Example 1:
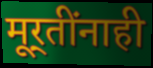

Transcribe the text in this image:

मूर्तींनाही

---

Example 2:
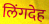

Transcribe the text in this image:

लिंगदेह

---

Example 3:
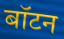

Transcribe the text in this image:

बॉटन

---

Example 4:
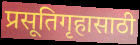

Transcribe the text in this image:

प्रसूतिगृहासाठी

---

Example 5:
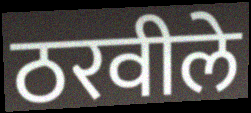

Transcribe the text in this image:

ठरवीले